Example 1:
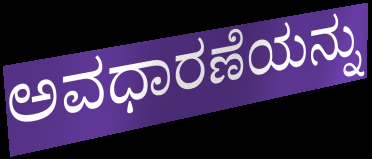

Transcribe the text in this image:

ಅವಧಾರಣೆಯನ್ನು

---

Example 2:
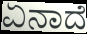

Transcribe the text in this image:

ಏನಾದೆ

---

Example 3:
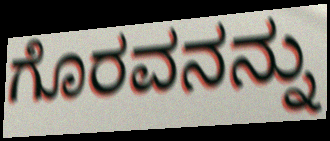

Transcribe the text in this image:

ಗೊರವನನ್ನು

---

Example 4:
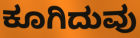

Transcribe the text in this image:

ಕೂಗಿದುವು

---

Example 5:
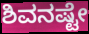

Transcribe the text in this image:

ಶಿವನಷ್ಟೇ